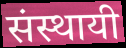
संस्थायी